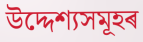
উদ্দেশ্যসমূহৰ